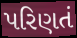
પરિણતં